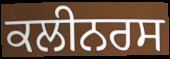
ਕਲੀਨਰਸ